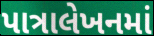
પાત્રાલેખનમાં